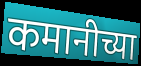
कमानीच्या